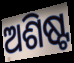
ଅଶିଷ୍ଟ